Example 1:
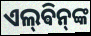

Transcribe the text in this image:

ଏଲ୍‌ଵିନ୍‌ଙ୍କ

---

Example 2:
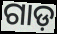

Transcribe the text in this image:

ଗାଡ଼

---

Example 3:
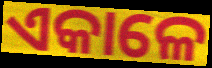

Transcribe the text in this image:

ଏକାଳେ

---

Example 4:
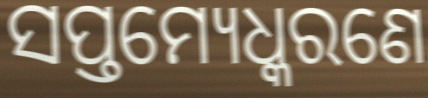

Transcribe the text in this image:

ସପ୍ତମ୍ୟେଧ୍କରଣେ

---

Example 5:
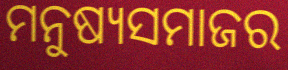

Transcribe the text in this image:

ମନୁଷ୍ୟସମାଜର